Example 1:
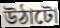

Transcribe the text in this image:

উঠাটো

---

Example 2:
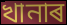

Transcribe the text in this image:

খানাৰ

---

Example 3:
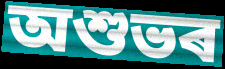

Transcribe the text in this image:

অশুভৰ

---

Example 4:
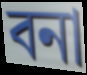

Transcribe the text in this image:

বনা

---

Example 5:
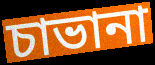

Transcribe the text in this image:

চাভানা